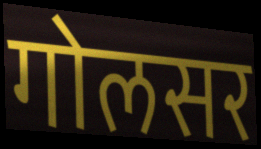
गोलसर